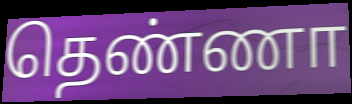
தெண்ணா